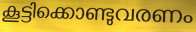
കൂട്ടിക്കൊണ്ടുവരണം